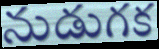
నుడుగక